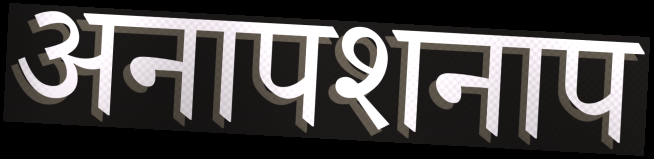
अनापशनाप